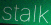
stalk